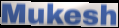
Mukesh